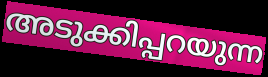
അടുക്കിപ്പറയുന്ന